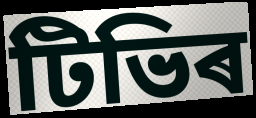
টিভিৰ